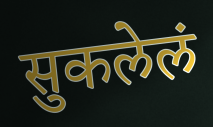
सुकलेलं